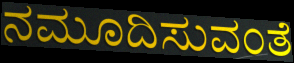
ನಮೂದಿಸುವಂತೆ